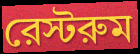
রেস্টরুম